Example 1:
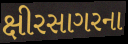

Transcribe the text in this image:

ક્ષીરસાગરના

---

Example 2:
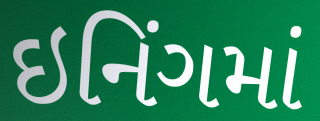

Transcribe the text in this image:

ઇનિંગમાં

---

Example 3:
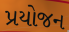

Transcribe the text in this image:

પ્રયોજન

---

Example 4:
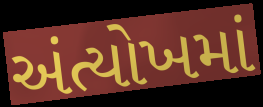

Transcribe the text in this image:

અંત્યોખમાં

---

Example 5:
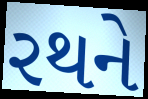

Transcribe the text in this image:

રથને